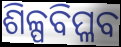
ଶିଳ୍ପବିପ୍ଳବ